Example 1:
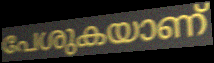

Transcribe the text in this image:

പേശുകയാണ്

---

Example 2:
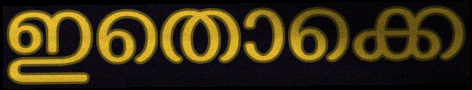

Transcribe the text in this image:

ഇതൊക്കെ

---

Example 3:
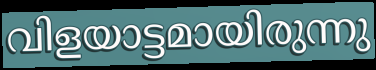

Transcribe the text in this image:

വിളയാട്ടമായിരുന്നു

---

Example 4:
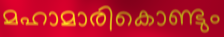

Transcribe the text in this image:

മഹാമാരികൊണ്ടും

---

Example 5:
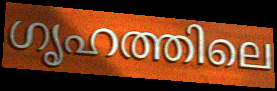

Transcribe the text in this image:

ഗൃഹത്തിലെ